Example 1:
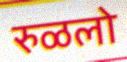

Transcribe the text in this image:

रुळलो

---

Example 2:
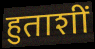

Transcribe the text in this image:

हुताशीं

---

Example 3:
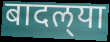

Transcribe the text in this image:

बादल्या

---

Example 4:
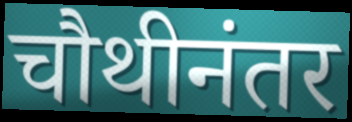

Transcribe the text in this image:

चौथीनंतर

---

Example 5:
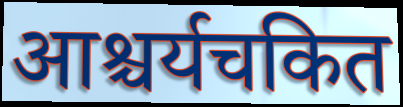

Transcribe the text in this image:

आश्चर्यचकित